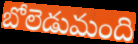
బోలెడుమంది